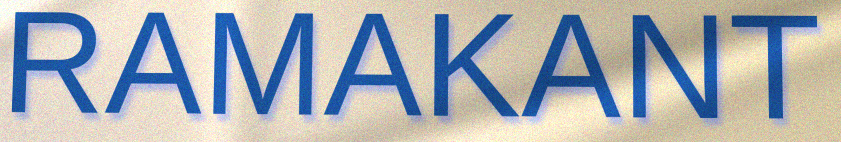
RAMAKANT